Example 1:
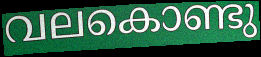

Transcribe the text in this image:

വലകൊണ്ടു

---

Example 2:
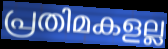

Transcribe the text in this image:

പ്രതിമകളല്ല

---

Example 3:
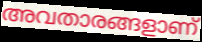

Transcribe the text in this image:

അവതാരങ്ങളാണ്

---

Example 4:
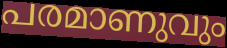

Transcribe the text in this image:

പരമാണുവും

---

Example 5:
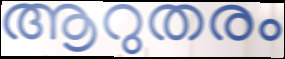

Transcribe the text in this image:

ആറുതരം